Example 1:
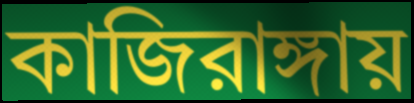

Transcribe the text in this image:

কাজিরাঙ্গায়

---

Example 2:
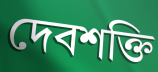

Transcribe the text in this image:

দেবশক্তি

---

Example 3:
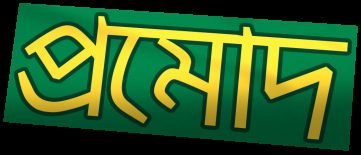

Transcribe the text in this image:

প্রমোদ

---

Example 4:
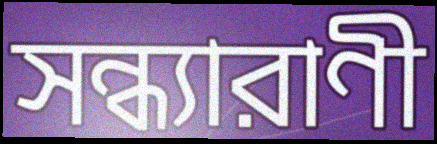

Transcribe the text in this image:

সন্ধ্যারাণী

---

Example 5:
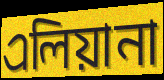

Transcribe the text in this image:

এলিয়ানা